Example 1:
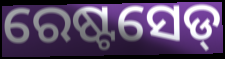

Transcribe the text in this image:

ରେଷ୍ଟସେଡ୍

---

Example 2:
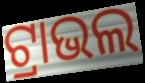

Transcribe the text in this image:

ଟ୍ରାଭଲ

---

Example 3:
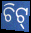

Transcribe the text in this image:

ଚିଟ୍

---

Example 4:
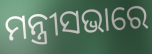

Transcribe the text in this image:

ମନ୍ତ୍ରୀସଭାରେ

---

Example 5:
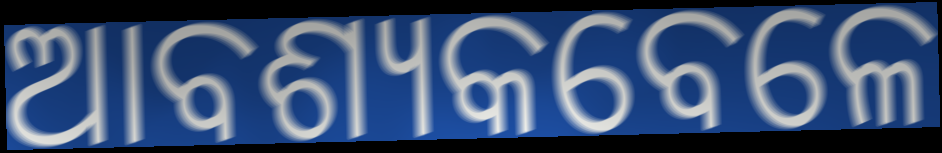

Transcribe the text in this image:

ଆବଶ୍ୟକବେଳେ